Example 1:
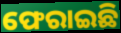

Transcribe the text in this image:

ଫେରାଇଛି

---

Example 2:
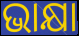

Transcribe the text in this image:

ଭାକ୍ଷା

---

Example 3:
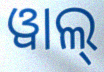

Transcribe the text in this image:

ୱାଲ୍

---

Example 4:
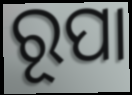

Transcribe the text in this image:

ରୂପା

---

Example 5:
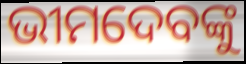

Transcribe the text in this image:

ଭୀମଦେବଙ୍କୁ